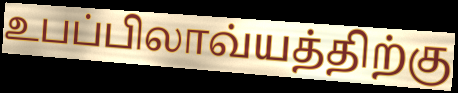
உபப்பிலாவ்யத்திற்கு